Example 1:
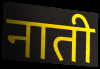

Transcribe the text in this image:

नाती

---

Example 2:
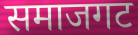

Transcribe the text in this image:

समाजगट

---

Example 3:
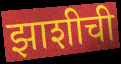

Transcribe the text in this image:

झाशीची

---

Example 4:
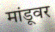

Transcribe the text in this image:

मांडूवर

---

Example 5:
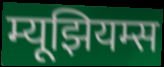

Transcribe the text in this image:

म्यूझियम्स